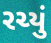
રચ્યું